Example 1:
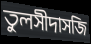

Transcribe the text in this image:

তুলসীদাসজি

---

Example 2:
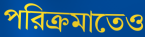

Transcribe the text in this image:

পরিক্রমাতেও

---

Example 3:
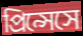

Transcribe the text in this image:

প্রিন্সেসে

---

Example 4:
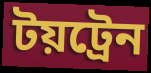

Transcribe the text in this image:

টয়ট্রেন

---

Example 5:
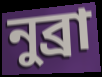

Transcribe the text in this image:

নুব্রা